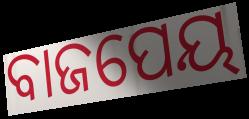
ବାଜପେୟ